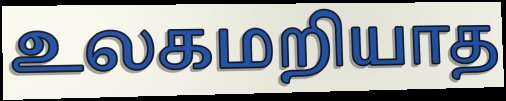
உலகமறியாத